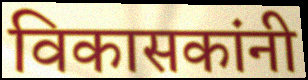
विकासकांनी